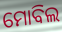
ମୋବିଲ